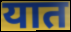
यात